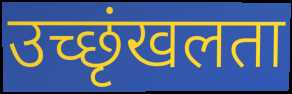
उच्छृंखलता